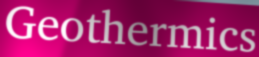
Geothermics